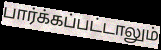
பார்க்கப்பட்டாலும்